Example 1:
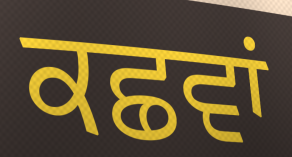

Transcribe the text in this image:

ਕਛਵਾਂ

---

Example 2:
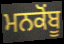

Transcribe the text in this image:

ਮਨਕੋਂਬੂ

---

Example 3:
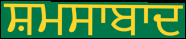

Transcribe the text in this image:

ਸ਼ਮਸਾਬਾਦ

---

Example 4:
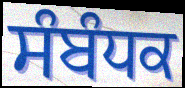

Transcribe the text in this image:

ਸੰਬੰਧਕ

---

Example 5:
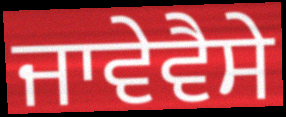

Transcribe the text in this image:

ਜਾਵੇਵੈਸੇ